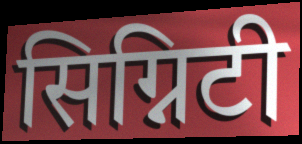
सिग्निटी